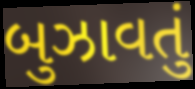
બુઝાવતું